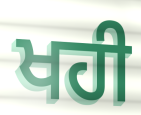
ਖਹੀ